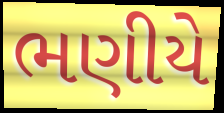
ભણીયે